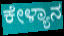
ಕೇಳ್ಯಾನ